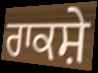
ਰਾਕਸ਼ੇ